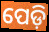
ପେଡ଼ି